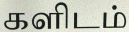
களிடம்